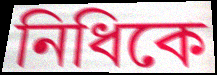
নিধিকে